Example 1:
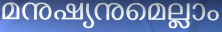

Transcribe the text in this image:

മനുഷ്യനുമെല്ലാം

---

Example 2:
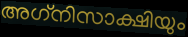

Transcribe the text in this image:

അഗ്‌നിസാക്ഷിയും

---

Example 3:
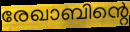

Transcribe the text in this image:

രേഖാബിന്റെ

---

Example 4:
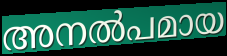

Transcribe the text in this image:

അനൽപമായ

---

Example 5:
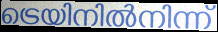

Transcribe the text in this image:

ട്രെയിനിൽനിന്ന്